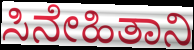
ಸಿನೇಹಿತಾನಿ